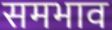
समभाव